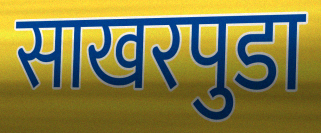
साखरपुडा